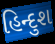
હિન્દુશ